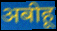
अबीहू